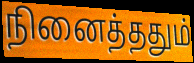
நினைத்ததும்